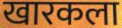
खारकला